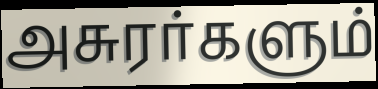
அசுரர்களும்